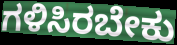
ಗಳಿಸಿರಬೇಕು